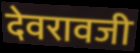
देवरावजी